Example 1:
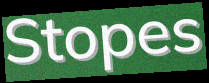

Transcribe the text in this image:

Stopes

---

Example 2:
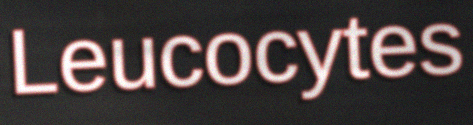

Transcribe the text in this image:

Leucocytes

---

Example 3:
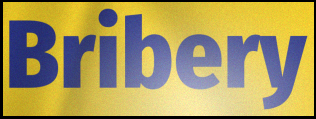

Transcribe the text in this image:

Bribery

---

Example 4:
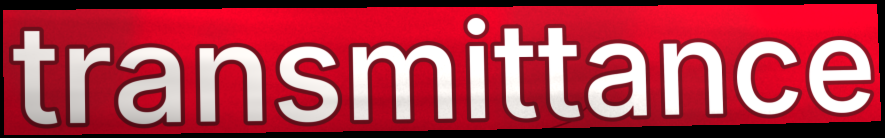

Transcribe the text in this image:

transmittance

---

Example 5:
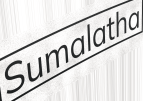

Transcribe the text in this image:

Sumalatha